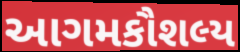
આગમકૌશલ્ય